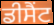
ਡੀਸੈਂਟ